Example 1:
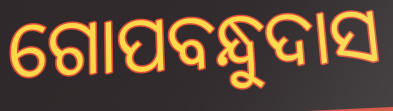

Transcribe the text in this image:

ଗୋପବନ୍ଧୁଦାସ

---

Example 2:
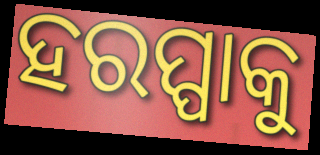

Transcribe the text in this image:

ହରପ୍ପାକୁ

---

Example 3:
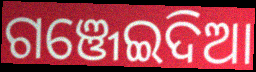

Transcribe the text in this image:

ଗଞ୍ଜେଇଦିଆ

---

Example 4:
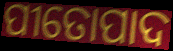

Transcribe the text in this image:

ପୀତୋପାଦ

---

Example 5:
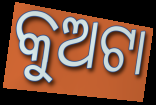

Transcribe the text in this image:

କୁଅଟା